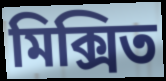
মিক্সিত